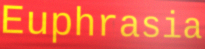
Euphrasia